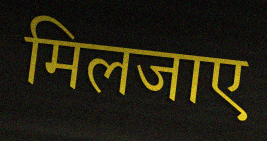
मिलजाए